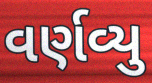
વર્ણવ્યુ